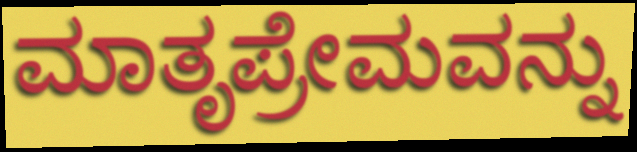
ಮಾತೃಪ್ರೇಮವನ್ನು